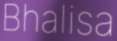
Bhalisa